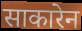
साकारेन